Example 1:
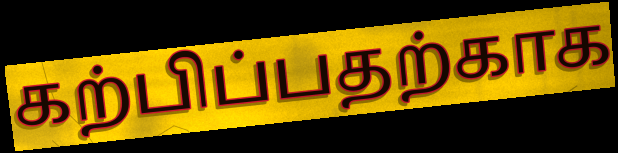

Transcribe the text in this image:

கற்பிப்பதற்காக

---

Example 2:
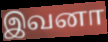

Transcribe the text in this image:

இவனா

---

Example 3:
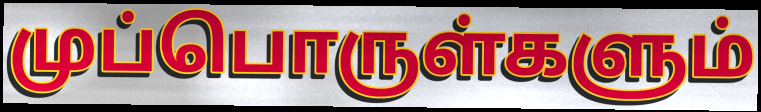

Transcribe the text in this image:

முப்பொருள்களும்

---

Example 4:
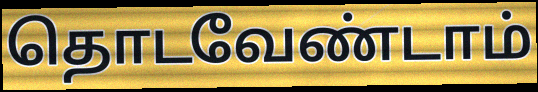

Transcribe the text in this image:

தொடவேண்டாம்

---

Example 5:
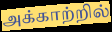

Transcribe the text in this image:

அக்காற்றில்